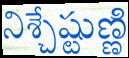
నిశ్చేష్టుణ్ణి